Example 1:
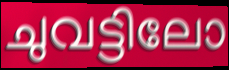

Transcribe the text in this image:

ചുവട്ടിലോ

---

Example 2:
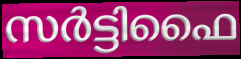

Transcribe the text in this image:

സർട്ടിഫൈ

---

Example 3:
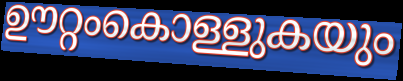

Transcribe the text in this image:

ഊറ്റംകൊള്ളുകയും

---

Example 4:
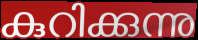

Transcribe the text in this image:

കുറിക്കുന്നു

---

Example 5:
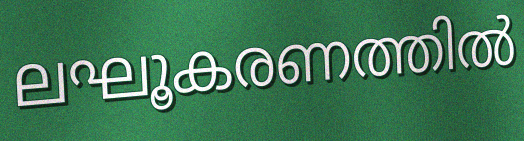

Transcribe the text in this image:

ലഘൂകരണത്തിൽ